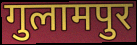
गुलामपुर